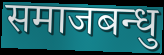
समाजबन्धु